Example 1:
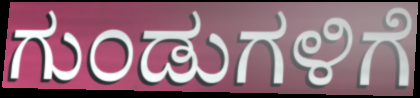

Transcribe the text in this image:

ಗುಂಡುಗಳಿಗೆ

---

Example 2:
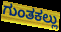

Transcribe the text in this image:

ಗುಂತಕಲ್ಲು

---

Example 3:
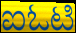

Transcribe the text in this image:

ಐಓಟಿ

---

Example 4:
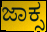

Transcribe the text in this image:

ಜಾಕ್ಸ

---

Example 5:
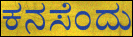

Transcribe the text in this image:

ಕನಸೆಂದು